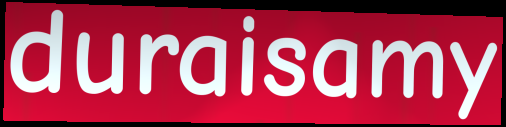
duraisamy